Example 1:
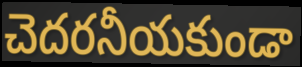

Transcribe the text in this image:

చెదరనీయకుండా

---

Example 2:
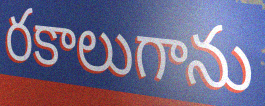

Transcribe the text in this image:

రకాలుగాను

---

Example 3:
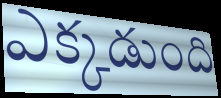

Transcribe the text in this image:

ఎక్కడుంది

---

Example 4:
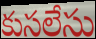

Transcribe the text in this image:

కుసలేసు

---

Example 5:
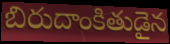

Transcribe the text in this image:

బిరుదాంకితుడైన